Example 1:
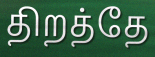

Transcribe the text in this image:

திறத்தே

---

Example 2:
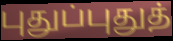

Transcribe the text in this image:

புதுப்புதுத்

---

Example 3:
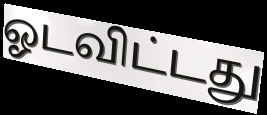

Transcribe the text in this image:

ஓடவிட்டது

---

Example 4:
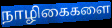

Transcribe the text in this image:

நாழிகைகளை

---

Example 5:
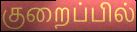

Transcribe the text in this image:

குறைப்பில்